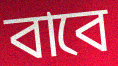
বাবে